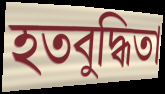
হতবুদ্ধিতা